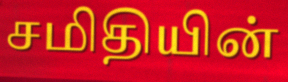
சமிதியின்